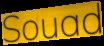
Souad